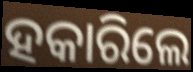
ହକାରିଲେ